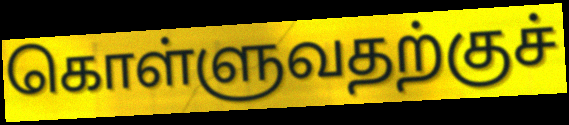
கொள்ளுவதற்குச்